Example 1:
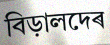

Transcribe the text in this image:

বিড়ালদেৰ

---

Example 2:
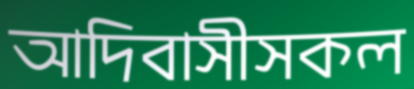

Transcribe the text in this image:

আদিবাসীসকল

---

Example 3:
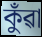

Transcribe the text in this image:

কুঁৱা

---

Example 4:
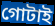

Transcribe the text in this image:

গোটাই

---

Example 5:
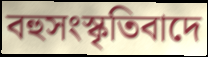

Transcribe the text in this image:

বহুসংস্কৃতিবাদে